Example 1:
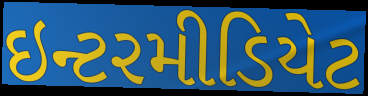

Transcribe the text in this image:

ઇન્ટરમીડિયેટ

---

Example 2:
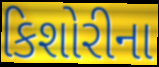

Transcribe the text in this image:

કિશોરીના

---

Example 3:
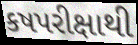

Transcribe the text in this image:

કષપરીક્ષાથી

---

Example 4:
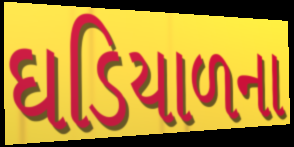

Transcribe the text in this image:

ઘડિયાળના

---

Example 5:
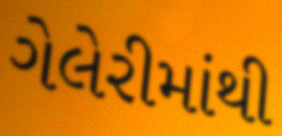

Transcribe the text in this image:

ગેલેરીમાંથી